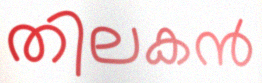
തിലകൻ